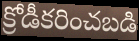
క్రోడీకరించబడి